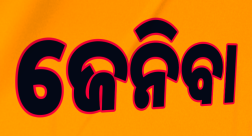
ଜେନିବା